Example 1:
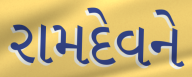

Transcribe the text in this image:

રામદેવને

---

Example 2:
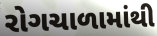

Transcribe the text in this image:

રોગચાળામાંથી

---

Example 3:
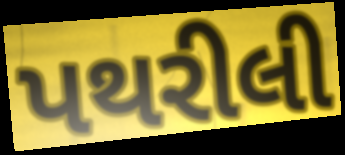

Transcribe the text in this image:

પથરીલી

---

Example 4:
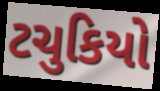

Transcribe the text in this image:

ટચુકિયો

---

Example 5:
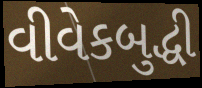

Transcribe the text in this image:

વીવેકબુદ્ધી